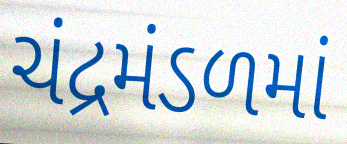
ચંદ્રમંડળમાં